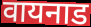
वायनाड